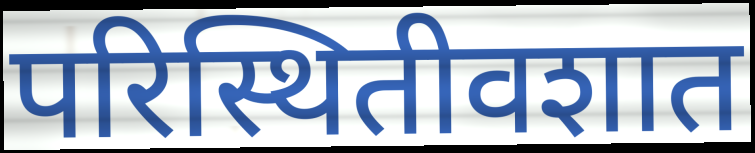
परिस्थितीवशात